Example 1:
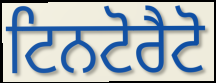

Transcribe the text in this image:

ਟਿਨਟੋਰੈਟੋ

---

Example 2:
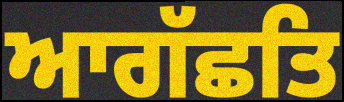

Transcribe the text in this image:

ਆਗੱਛਤਿ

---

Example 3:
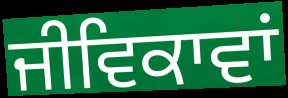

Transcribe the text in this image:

ਜੀਵਿਕਾਵਾਂ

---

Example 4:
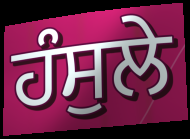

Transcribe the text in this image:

ਹੰਸੁਲੇ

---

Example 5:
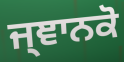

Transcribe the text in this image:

ਜ੍ਞਾਨਕੋ